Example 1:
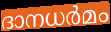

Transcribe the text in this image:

ദാനധർമം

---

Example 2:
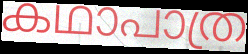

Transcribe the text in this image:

കഥാപാത്ര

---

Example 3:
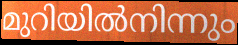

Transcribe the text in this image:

മുറിയിൽനിന്നും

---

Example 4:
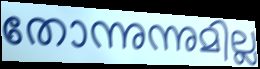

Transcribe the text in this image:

തോന്നുന്നുമില്ല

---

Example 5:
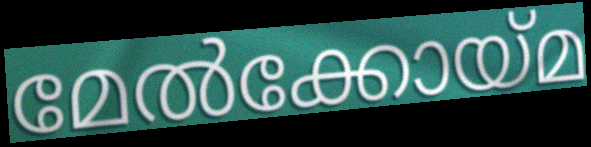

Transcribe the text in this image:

മേൽക്കോയ്മ